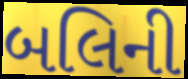
બલિની